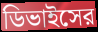
ডিভাইসের